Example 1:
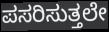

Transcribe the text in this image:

ಪಸರಿಸುತ್ತಲೇ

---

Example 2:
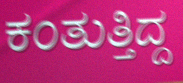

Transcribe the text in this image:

ಕಂತುತ್ತಿದ್ದ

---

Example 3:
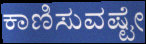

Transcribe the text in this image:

ಕಾಣಿಸುವಷ್ಟೇ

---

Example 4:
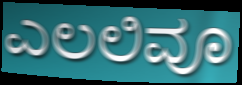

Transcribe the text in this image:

ಎಲಲಿವೂ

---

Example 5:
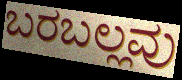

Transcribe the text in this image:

ಬರಬಲ್ಲವು